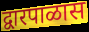
द्वारपाळास